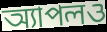
অ্যাপলও